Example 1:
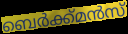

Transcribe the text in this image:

ബെർക്ക്മൻസ്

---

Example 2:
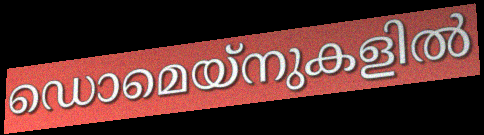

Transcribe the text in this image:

ഡൊമെയ്നുകളിൽ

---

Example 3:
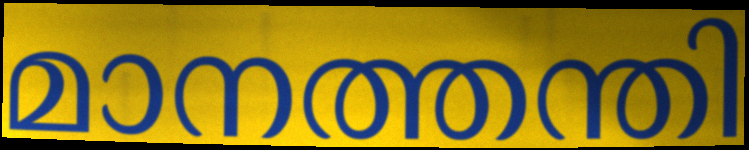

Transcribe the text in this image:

മാനത്തന്തി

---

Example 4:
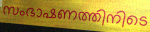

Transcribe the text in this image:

സംഭാഷണത്തിനിടെ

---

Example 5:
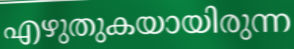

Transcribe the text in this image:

എഴുതുകയായിരുന്ന